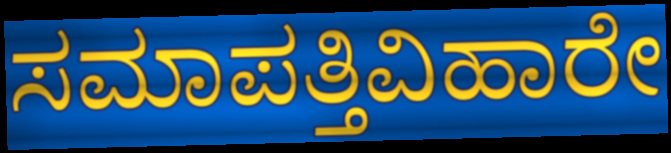
ಸಮಾಪತ್ತಿವಿಹಾರೇ